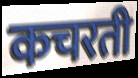
कचरती